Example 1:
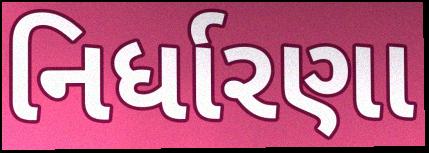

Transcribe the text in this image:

નિર્ધારણા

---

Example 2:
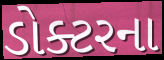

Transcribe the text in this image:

ડોક્ટરના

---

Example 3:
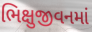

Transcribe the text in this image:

ભિક્ષુજીવનમાં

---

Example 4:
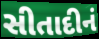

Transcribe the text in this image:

સીતાદીનં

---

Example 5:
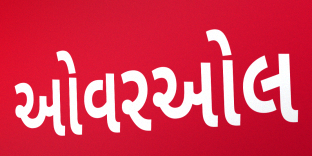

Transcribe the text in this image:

ઓવરઓલ